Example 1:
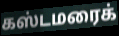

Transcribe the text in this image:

கஸ்டமரைக்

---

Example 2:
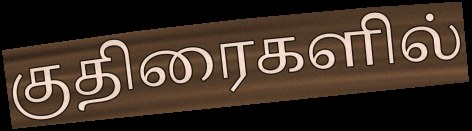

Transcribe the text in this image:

குதிரைகளில்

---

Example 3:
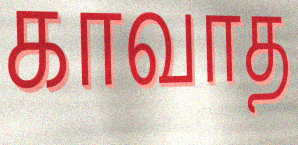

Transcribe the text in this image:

காவாத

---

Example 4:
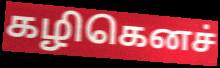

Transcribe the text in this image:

கழிகெனச்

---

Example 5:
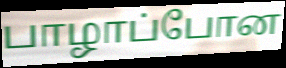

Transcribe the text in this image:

பாழாப்போன